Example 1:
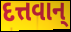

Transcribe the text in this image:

દત્તવાન્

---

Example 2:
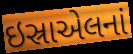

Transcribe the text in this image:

ઇસ્રાએલનાં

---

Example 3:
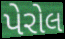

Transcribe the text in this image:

પેરોલ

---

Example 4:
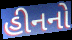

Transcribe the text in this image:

હીનનો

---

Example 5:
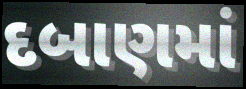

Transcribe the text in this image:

દબાણમાં